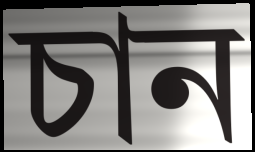
চান